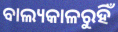
ବାଲ୍ୟକାଳରୁହିଁ